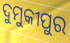
ଦୁମୁକୀପୁର